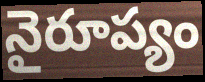
నైరూప్యం